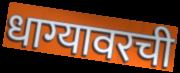
धाग्यावरची